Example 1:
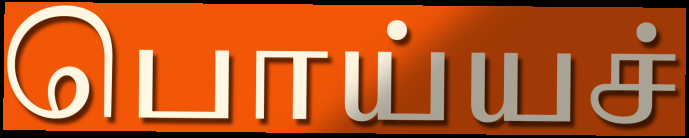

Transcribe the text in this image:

பொய்யச்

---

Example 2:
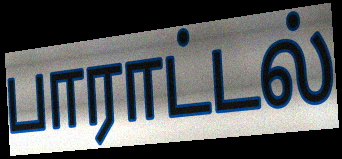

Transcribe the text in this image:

பாராட்டல்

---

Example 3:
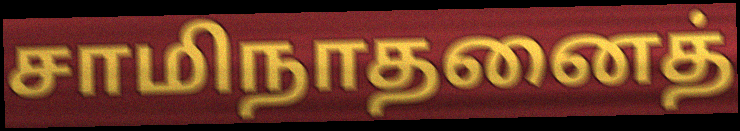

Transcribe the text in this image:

சாமிநாதனைத்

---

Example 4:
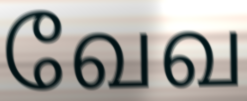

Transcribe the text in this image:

வேவ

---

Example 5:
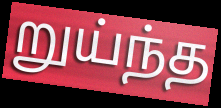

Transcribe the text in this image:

றுய்ந்த